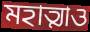
মহাত্মাও